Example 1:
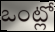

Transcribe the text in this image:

ఒంట్లో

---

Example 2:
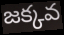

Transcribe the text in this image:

జక్కవ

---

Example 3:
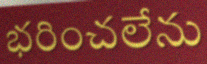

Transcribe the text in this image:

భరించలేను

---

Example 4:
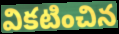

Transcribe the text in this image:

వికటించిన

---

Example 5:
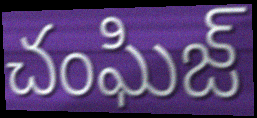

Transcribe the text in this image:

చంఘిజ్